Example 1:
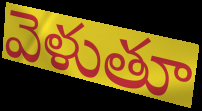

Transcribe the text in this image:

వెళుతూ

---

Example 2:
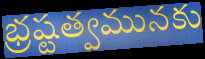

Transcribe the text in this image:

భ్రష్టత్వమునకు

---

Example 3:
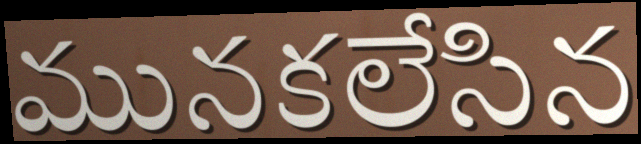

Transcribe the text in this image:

మునకలేసిన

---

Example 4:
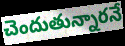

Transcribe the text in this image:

చెందుతున్నారనే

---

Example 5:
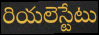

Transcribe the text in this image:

రియలెస్టేటు